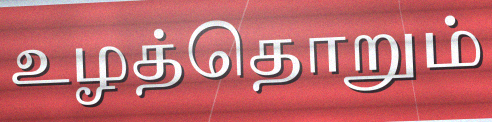
உழத்தொறும்